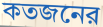
কতজনের